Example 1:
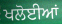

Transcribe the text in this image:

ਖਲੋਈਆਂ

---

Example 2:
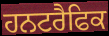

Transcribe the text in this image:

ਹਨਟਰੈਫਿਕ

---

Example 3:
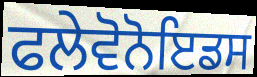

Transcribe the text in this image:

ਫਲੇਵੋਨੋਇਡਸ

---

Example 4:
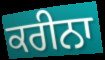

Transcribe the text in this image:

ਕਰੀਨਾ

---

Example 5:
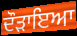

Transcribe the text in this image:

ਦੌੜਾਇਆ